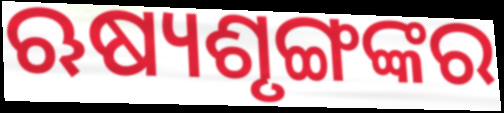
ଋଷ୍ୟଶୃଙ୍ଗଙ୍କର